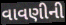
વાવણીની